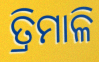
ତ୍ରିମାଳି